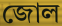
জোল